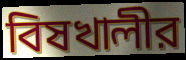
বিষখালীর